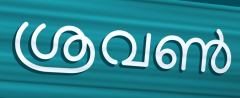
ശ്രവൺ